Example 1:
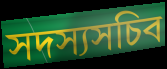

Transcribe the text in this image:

সদস্যসচিব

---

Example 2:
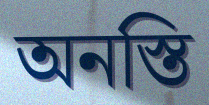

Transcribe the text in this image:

অনস্তি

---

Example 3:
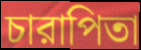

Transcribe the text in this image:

চারাপিতা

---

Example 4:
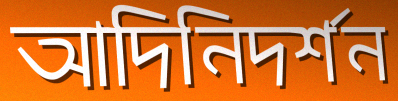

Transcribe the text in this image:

আদিনিদর্শন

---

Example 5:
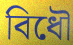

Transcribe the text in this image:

বিধৌ